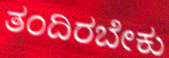
ತಂದಿರಬೇಕು